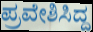
ಪ್ರವೇಶಿಸಿದ್ದ